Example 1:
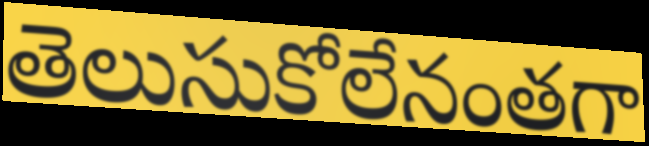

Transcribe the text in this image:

తెలుసుకోలేనంతగా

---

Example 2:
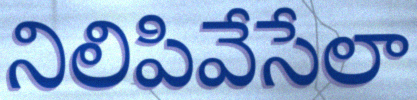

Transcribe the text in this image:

నిలిపివేసేలా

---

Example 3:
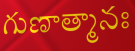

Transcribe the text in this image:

గుణాత్మానః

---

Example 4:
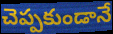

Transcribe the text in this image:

చెప్పకుండానే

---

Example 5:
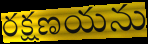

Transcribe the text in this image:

రక్షణయను